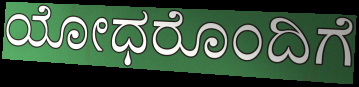
ಯೋಧರೊಂದಿಗೆ